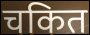
चकित